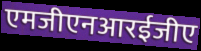
एमजीएनआरईजीए